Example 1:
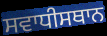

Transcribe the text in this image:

ਸਵਾਧੀਸਥਾਨ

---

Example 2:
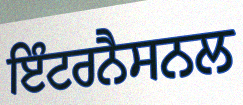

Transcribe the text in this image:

ਇੰਟਰਨੈਸਨਲ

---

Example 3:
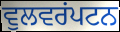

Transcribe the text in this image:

ਵੁਲਵਰਂਪਟਨ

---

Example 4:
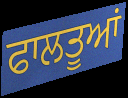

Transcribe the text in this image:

ਫਾਲਤੂਆਂ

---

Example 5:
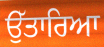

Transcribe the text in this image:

ਉੱਤਾਰਿਆ